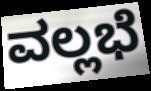
ವಲ್ಲಭೆ